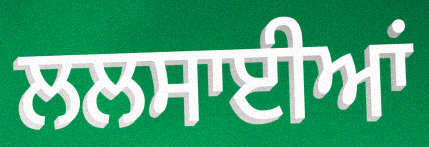
ਲਲਸਾਈਆਂ